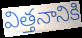
విత్తనానికి